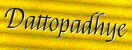
Dattopadhye